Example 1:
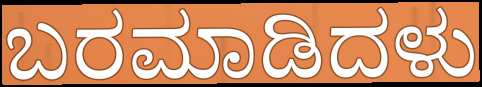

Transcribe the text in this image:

ಬರಮಾಡಿದಳು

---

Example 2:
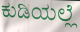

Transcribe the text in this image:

ಕುಡಿಯಲ್ಲೆ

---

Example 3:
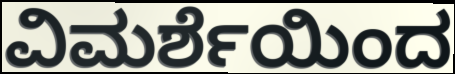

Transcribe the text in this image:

ವಿಮರ್ಶೆಯಿಂದ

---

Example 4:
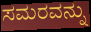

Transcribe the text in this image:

ಸಮರವನ್ನು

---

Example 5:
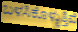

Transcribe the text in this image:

ಬಳಸಿಕೊಳ್ಳುತ್ತಿವೆ